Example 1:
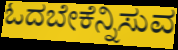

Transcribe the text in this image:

ಓದಬೇಕೆನ್ನಿಸುವ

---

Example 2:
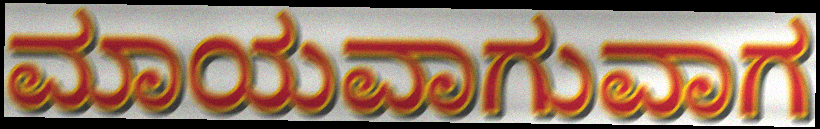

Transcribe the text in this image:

ಮಾಯವಾಗುವಾಗ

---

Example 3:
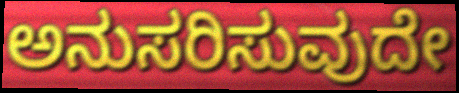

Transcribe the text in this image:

ಅನುಸರಿಸುವುದೇ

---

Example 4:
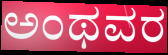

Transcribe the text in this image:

ಅಂಥವರ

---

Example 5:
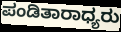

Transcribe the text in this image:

ಪಂಡಿತಾರಾಧ್ಯರು